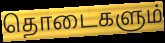
தொடைகளும்